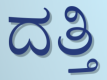
ದತ್ತಿ